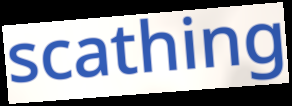
scathing